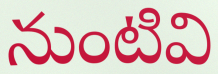
నుంటివి